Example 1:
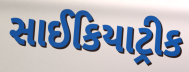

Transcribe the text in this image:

સાઈકિયાટ્રીક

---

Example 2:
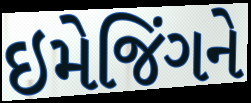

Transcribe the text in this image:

ઇમેજિંગને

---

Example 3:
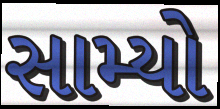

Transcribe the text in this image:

સામ્યો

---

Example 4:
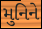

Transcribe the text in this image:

મુનિને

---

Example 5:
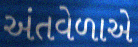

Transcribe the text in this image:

અંતવેળાએ